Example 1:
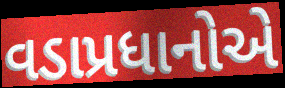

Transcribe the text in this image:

વડાપ્રધાનોએ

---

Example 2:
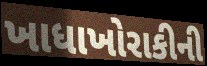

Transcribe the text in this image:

ખાધાખોરાકીની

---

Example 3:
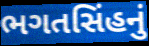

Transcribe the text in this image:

ભગતસિંહનું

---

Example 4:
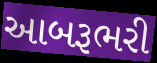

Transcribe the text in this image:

આબરૂભરી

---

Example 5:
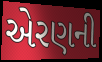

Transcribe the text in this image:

એરણની